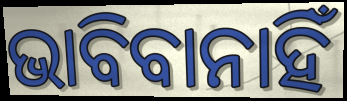
ଭାବିବାନାହିଁ